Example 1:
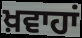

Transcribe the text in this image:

ਖ਼ਵਾਹਾਂ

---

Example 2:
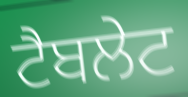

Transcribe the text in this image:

ਟੈਬਲੇਟ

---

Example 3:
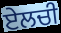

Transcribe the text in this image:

ਏਲਚੀ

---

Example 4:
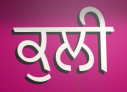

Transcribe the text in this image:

ਕੁਲੀ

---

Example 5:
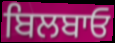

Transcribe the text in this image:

ਬਿਲਬਾਓ